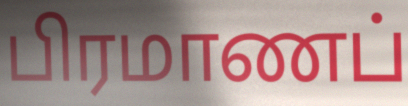
பிரமாணப்